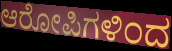
ಆರೋಪಿಗಳಿಂದ